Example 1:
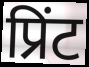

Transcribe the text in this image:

प्रिंट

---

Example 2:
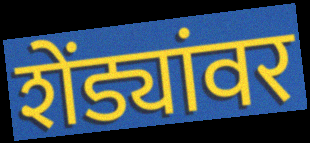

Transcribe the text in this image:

शेंड्यांवर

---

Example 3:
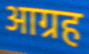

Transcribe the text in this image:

आग्रह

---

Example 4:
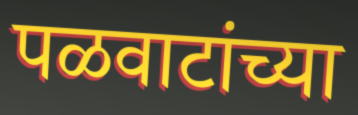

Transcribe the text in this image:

पळवाटांच्या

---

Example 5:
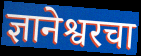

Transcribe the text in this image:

ज्ञानेश्वरचा